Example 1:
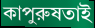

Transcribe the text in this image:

কাপুরুষতাই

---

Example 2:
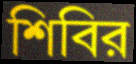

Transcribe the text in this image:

শিবির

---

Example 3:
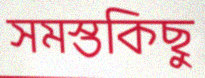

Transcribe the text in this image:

সমস্তকিছু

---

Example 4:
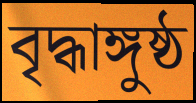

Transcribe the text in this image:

বৃদ্ধাঙ্গুষ্ঠ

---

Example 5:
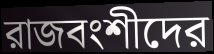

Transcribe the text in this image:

রাজবংশীদের